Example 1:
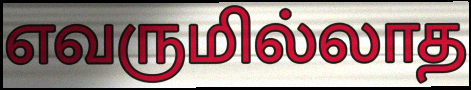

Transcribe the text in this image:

எவருமில்லாத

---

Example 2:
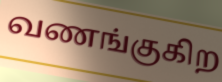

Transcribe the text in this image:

வணங்குகிற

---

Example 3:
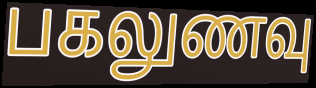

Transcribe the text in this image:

பகலுணவு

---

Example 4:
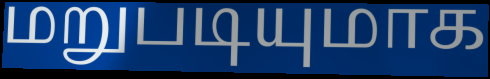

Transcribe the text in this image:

மறுபடியுமாக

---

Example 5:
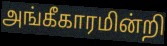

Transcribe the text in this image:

அங்கீகாரமின்றி